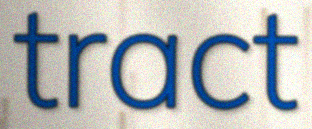
tract